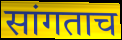
सांगताच